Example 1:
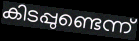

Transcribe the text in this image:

കിടപ്പുണ്ടെന്ന്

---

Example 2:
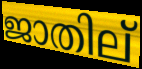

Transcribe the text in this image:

ജാതില്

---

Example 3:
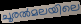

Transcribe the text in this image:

ചൂരൽമലയിലെ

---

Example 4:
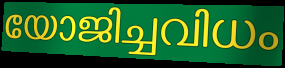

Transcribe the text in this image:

യോജിച്ചവിധം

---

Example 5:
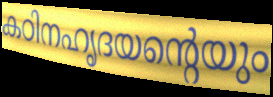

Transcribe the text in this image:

കഠിനഹൃദയന്റെയും